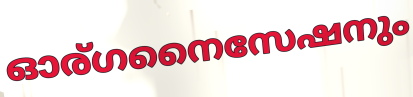
ഓര്ഗനൈസേഷനും